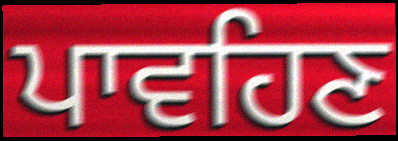
ਪਾਵਹਿਣ